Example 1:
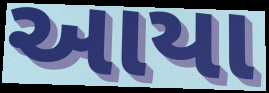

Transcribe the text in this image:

આયા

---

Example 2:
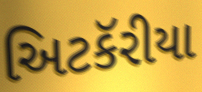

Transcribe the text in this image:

અિટકૅરીયા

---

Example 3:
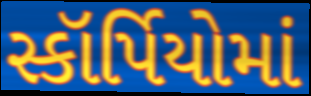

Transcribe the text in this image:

સ્કૉર્પિયોમાં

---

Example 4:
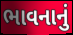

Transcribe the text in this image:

ભાવનાનું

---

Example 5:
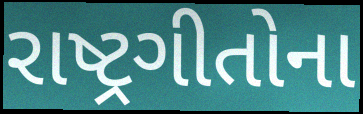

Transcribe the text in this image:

રાષ્ટ્રગીતોના